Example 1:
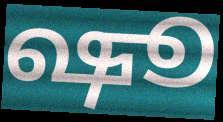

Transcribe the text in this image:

ஷூ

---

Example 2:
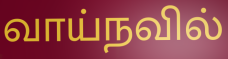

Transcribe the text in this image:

வாய்நவில்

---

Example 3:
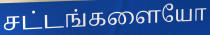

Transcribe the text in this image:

சட்டங்களையோ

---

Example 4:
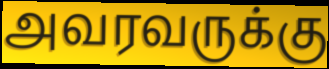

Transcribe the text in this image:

அவரவருக்கு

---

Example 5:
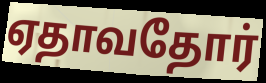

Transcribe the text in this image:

ஏதாவதோர்